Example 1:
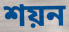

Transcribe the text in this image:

শয়ন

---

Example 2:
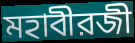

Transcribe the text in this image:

মহাবীরজী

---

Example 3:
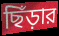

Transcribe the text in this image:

ছিঁড়ার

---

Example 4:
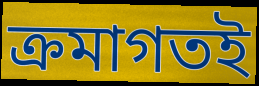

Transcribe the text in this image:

ক্রমাগতই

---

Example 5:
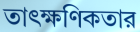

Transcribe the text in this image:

তাৎক্ষণিকতার